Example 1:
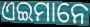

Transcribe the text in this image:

ଏଇମାନେ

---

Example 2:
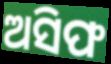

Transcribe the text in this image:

ଅସିଫ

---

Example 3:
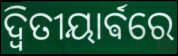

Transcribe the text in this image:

ଦ୍ଵିତୀୟାର୍ଵରେ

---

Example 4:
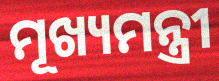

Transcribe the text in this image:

ମୂଖ୍ୟମନ୍ତ୍ରୀ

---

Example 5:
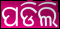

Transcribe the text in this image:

ପଡିଲି